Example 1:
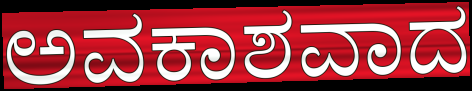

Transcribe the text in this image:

ಅವಕಾಶವಾದ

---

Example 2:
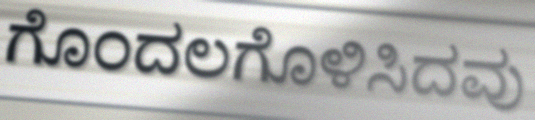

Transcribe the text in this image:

ಗೊಂದಲಗೊಳಿಸಿದವು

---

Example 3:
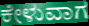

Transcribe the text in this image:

ಕೇಳುವಾಗ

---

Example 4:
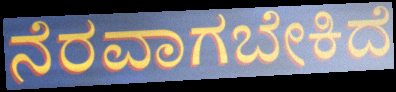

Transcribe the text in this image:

ನೆರವಾಗಬೇಕಿದೆ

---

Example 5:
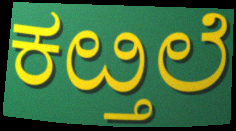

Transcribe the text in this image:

ಕೞ್ತಲೆ